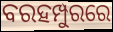
ବରହମ୍ପୁରରେ